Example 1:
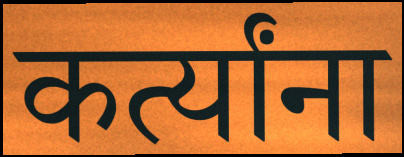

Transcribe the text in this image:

कर्त्यांना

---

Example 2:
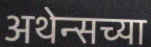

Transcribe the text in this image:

अथेन्सच्या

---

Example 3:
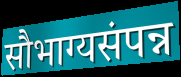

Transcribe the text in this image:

सौभाग्यसंपन्न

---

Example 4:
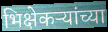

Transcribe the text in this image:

भिक्षेकऱ्यांच्या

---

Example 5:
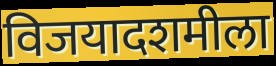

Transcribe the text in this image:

विजयादशमीला